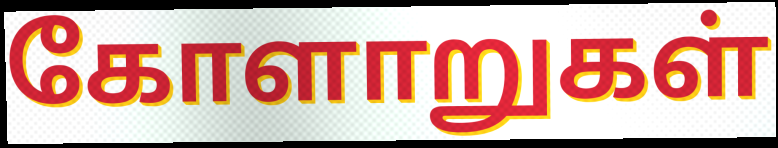
கோளாறுகள்